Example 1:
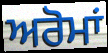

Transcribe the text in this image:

ਅਰੋਮਾਂ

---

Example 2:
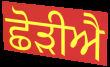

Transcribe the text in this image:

ਛੋੜੀਐ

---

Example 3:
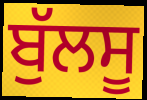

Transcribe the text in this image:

ਬੁੱਲਸੂ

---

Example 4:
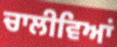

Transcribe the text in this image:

ਚਾਲੀਵਿਆਂ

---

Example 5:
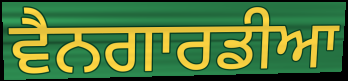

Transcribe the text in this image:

ਵੈਨਗਾਰਡੀਆ